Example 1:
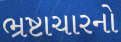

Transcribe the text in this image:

ભ્રષ્ટાચારનો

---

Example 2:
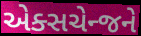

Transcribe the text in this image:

એક્સચેન્જને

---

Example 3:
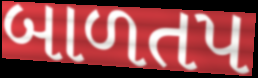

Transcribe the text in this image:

બાળતપ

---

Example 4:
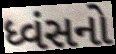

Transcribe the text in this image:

ધ્વંસનો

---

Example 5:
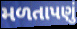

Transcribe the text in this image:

મળતાપણું